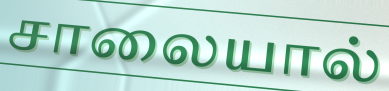
சாலையால்